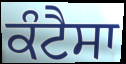
ਕੰਟੈਸਾ